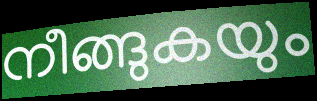
നീങ്ങുകയും